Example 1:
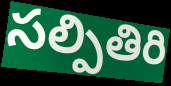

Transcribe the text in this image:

సల్పితిరి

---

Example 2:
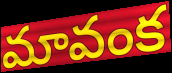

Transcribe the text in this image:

మావంక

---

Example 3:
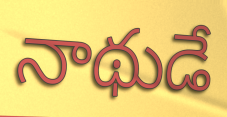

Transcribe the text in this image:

నాథుడే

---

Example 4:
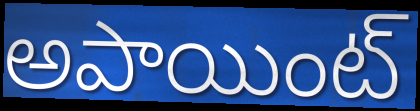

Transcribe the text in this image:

అపాయింట్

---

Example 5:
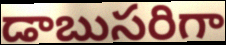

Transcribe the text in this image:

డాబుసరిగా